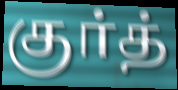
குர்த்